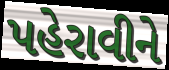
પહેરાવીને